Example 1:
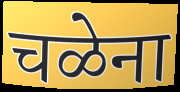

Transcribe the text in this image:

चळेना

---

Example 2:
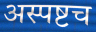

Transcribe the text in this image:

अस्पष्टच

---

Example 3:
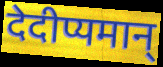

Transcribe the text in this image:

देदीप्यमान्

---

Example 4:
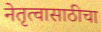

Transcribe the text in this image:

नेतृत्वासाठीचा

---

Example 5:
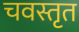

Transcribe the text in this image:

चवस्तृत